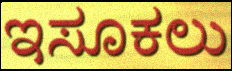
ಇಸೂಕಲು